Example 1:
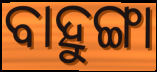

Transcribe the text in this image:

ବାହୁଙ୍ଗା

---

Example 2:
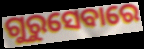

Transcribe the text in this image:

ଗୁରୁସେବାରେ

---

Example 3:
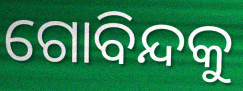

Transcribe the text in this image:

ଗୋବିନ୍ଦକୁ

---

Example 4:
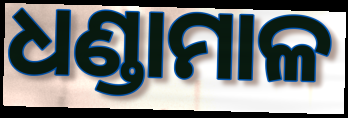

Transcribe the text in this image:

ଧଣ୍ଡାମାଳ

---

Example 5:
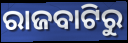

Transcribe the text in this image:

ରାଜବାଟିରୁ